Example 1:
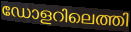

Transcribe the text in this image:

ഡോളറിലെത്തി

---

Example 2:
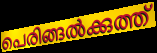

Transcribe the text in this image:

പെരിങ്ങൽക്കുത്ത്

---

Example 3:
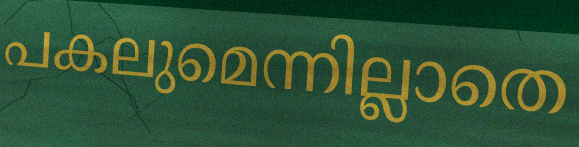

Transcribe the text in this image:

പകലുമെന്നില്ലാതെ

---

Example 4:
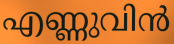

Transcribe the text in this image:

എണ്ണുവിൻ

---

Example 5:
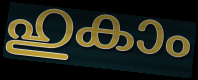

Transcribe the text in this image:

ഹുകാം